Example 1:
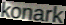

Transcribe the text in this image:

konark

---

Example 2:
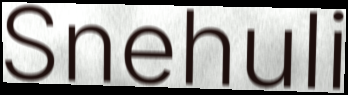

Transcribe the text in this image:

Snehuli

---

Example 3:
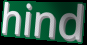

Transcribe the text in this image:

hind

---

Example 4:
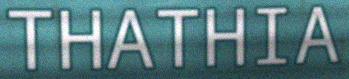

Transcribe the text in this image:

THATHIA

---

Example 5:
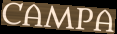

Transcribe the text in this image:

CAMPA